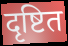
दृष्टित